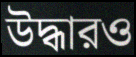
উদ্ধারও